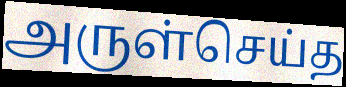
அருள்செய்த